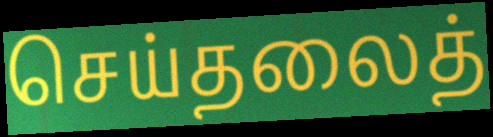
செய்தலைத்